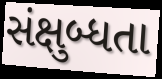
સંક્ષુબ્ધતા